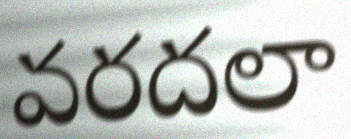
వరదలా